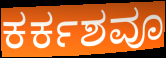
ಕರ್ಕಶವೂ